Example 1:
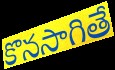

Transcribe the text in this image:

కొనసాగితే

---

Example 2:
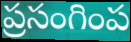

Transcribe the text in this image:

ప్రసంగింప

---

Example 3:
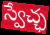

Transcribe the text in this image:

స్వేచ్ఛ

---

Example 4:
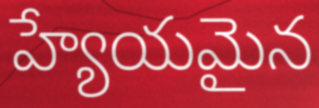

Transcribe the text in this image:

హ్యేయమైన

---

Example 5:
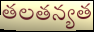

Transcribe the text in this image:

తలతన్యత